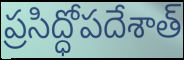
ప్రసిద్ధోపదేశాత్